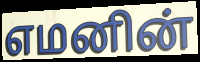
எமனின்